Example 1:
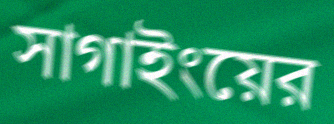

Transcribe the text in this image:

সাগাইংয়ের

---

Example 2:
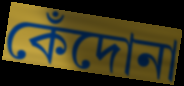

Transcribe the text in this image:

কেঁদোনা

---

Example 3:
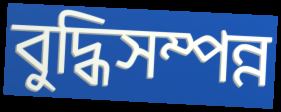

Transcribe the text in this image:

বুদ্ধিসম্পন্ন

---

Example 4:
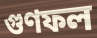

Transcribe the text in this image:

গুণফল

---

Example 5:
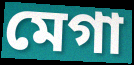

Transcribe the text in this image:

মেগা